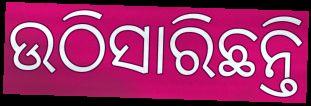
ଉଠିସାରିଛନ୍ତି